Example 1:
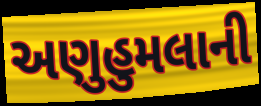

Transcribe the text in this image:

અણુહુમલાની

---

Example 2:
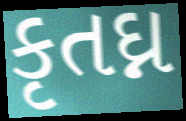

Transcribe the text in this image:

કૃતઘ્ન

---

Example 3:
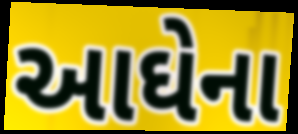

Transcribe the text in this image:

આઘેના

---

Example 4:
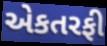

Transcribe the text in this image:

એકતરફી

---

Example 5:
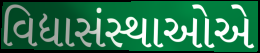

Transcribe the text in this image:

વિદ્યાસંસ્થાઓએ